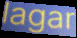
lagar